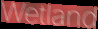
Wetland